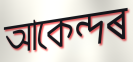
আকেন্দৰ